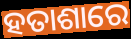
ହତାଶାରେ